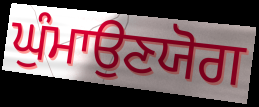
ਘੁੰਮਾਉਣਯੋਗ